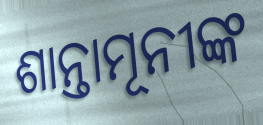
ଶାନ୍ତାମୂନୀଙ୍କ